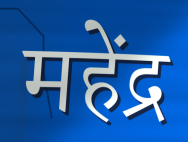
महेंद्र